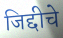
जिद्दीचे